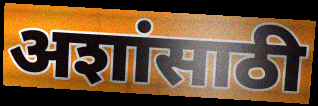
अशांसाठी